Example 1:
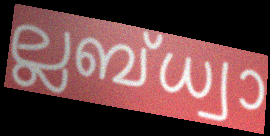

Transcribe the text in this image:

ല്ലബ്ധ്വാ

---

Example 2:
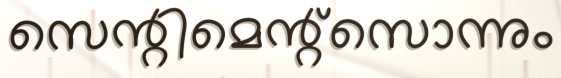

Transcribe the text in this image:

സെന്റിമെന്റ്സൊന്നും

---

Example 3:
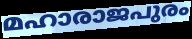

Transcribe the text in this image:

മഹാരാജപുരം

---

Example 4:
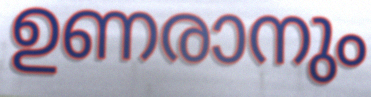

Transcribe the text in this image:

ഉണരാനും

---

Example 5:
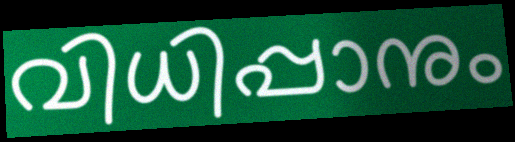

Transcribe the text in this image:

വിധിപ്പാനും